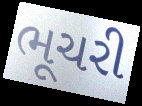
ભૂચરી